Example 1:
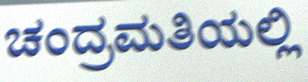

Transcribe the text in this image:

ಚಂದ್ರಮತಿಯಲ್ಲಿ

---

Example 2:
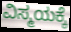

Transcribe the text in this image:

ವಿಸ್ಮಯಕ್ಕೆ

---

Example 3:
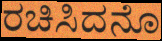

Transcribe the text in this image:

ರಚಿಸಿದನೊ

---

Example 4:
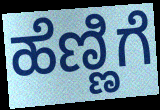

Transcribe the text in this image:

ಹೆಣ್ಣಿಗೆ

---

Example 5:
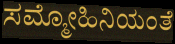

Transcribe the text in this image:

ಸಮ್ಮೋಹಿನಿಯಂತೆ